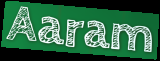
Aaram